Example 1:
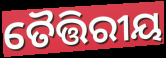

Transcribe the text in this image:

ତୈତ୍ତିରୀୟ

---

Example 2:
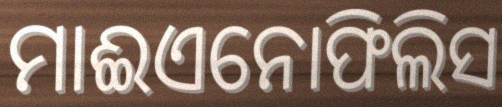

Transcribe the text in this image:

ମାଈଏନୋଫିଲିସ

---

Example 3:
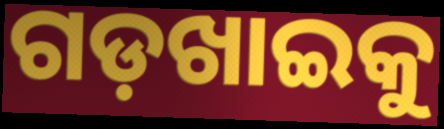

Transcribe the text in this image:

ଗଡ଼ଖାଇକୁ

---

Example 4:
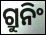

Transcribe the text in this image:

ଗ୍ରୁନିଂ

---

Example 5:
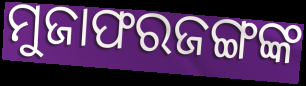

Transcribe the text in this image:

ମୁଜାଫରଜଙ୍ଗଙ୍କ